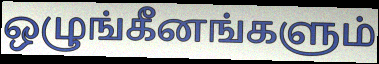
ஒழுங்கீனங்களும்